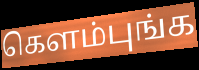
கெளம்புங்க